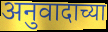
अनुवादाच्या